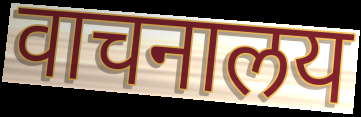
वाचनालय